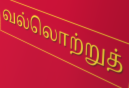
வல்லொற்றுத்